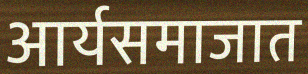
आर्यसमाजात